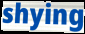
shying